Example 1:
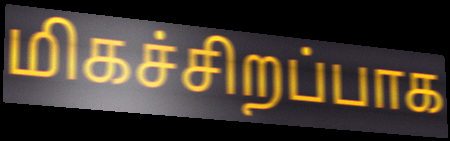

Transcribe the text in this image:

மிகச்சிறப்பாக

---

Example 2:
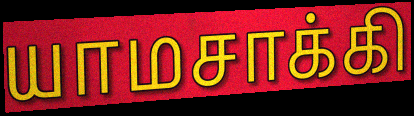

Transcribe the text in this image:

யாமசாக்கி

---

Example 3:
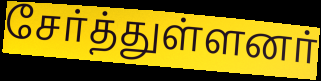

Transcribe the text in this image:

சேர்த்துள்ளனர்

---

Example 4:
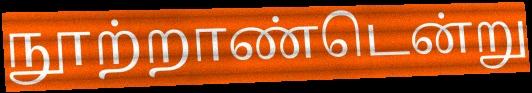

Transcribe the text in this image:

நூற்றாண்டென்று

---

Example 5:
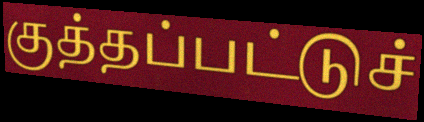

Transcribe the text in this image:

குத்தப்பட்டுச்